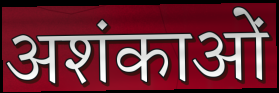
अशंकाओं